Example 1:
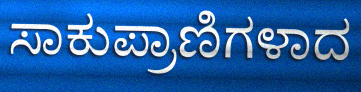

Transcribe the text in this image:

ಸಾಕುಪ್ರಾಣಿಗಳಾದ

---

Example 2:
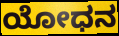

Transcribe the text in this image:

ಯೋಧನ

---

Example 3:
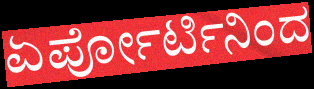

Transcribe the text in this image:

ಏರ್ಪೋರ್ಟಿನಿಂದ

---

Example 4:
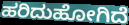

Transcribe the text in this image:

ಹರಿದುಹೋಗಿದೆ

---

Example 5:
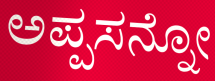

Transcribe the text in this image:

ಅಪ್ಪಸನ್ನೋ